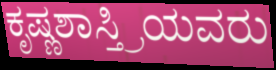
ಕೃಷ್ಣಶಾಸ್ತ್ರಿಯವರು